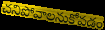
చనిపోవాలనుకోవడం